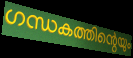
ഗന്ധകത്തിന്റെയും